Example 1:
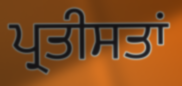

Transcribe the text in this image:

ਪ੍ਰਤੀਸਤਾਂ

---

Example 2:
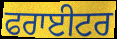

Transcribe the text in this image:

ਫਰਾਈਟਰ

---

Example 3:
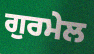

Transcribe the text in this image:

ਗੁਰਮੇਲ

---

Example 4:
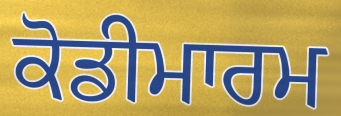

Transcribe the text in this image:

ਕੋਡੀਮਾਰਮ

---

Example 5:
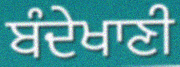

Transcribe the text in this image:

ਬੰਦੇਖਾਣੀ